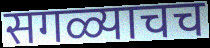
सगळ्याचच